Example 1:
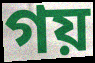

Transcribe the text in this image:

গয়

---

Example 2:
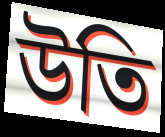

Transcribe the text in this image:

উতি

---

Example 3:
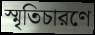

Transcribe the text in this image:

স্মৃতিচারণে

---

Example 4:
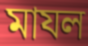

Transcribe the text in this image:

মাযল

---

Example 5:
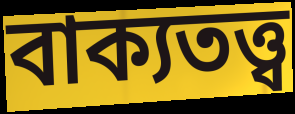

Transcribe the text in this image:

বাক্যতত্ত্ব